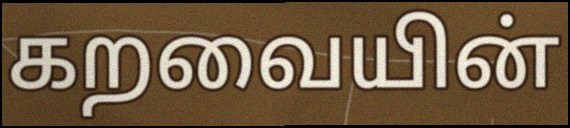
கறவையின்